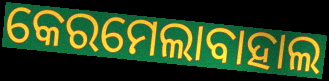
କେରମେଲାବାହାଲ